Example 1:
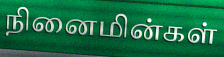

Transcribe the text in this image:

நினைமின்கள்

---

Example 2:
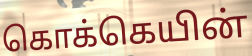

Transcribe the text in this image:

கொக்கெயின்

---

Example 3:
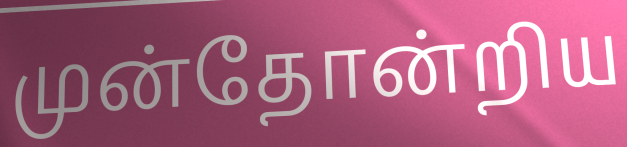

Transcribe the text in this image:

முன்தோன்றிய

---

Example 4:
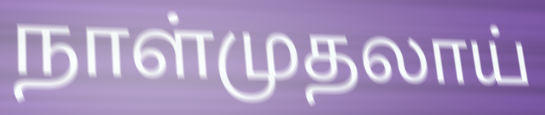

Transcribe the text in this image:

நாள்முதலாய்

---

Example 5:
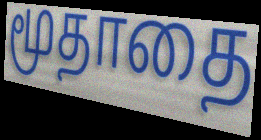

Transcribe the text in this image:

மூதாதை